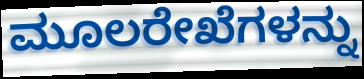
ಮೂಲರೇಖೆಗಳನ್ನು